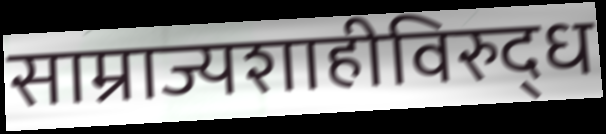
साम्राज्यशाहीविरुद्ध